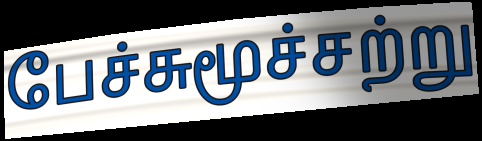
பேச்சுமூச்சற்று